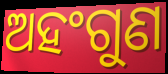
ଅହଂଗୁଣ